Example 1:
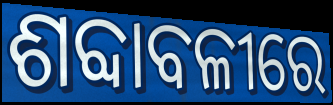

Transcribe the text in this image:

ଶବ୍ଦାବଳୀରେ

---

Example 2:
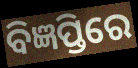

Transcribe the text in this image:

ବିଜ୍ଞପ୍ତିରେ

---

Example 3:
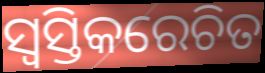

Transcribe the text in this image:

ସ୍ୱସ୍ତିକରେଚିତ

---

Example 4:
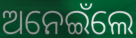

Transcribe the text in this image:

ଅନେଇଁଲେ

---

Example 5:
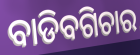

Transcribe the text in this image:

ବାଡିବଗିଚାର